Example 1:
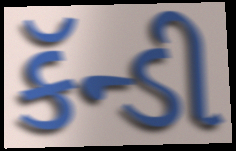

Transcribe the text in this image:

કૅન્ડી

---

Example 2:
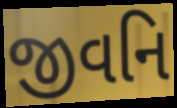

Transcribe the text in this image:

જીવનિ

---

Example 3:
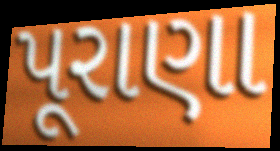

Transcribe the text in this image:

પૂરાણા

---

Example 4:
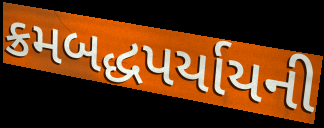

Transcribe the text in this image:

ક્રમબદ્ધપર્યાયની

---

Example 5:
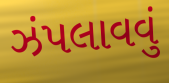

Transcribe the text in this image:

ઝંપલાવવું